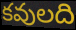
కవులది